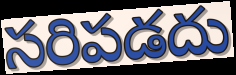
సరిపడదు